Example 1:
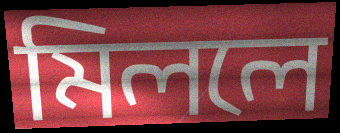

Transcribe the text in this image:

মিললে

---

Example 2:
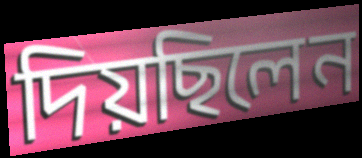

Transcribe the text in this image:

দিয়ছিলেন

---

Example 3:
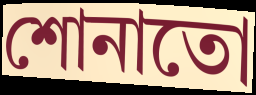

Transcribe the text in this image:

শোনাতো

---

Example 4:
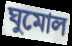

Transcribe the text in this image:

ঘুমোল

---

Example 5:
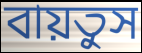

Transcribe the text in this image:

বায়তুস